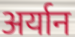
अर्यान